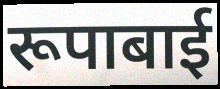
रूपाबाई